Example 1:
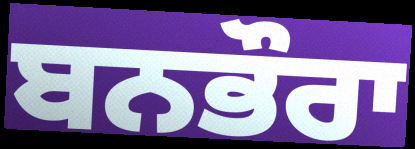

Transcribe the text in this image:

ਬਨਭੌਰਾ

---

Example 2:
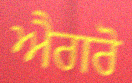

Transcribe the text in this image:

ਐਗਰੋ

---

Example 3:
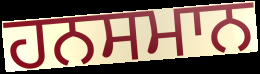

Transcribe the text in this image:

ਹਨਸਮਾਨ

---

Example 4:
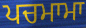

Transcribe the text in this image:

ਪਚਮਾਮਾ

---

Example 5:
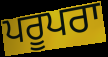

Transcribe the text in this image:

ਪਰੂਪਰਾ